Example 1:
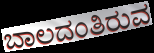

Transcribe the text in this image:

ಬಾಲದಂತಿರುವ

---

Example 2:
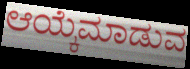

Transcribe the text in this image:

ಆಯ್ಕೆಮಾಡುವ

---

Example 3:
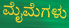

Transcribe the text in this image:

ಮೈಮೆಗಳು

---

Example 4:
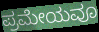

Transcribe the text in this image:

ಪ್ರಮೇಯವೂ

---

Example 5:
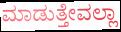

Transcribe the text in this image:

ಮಾಡುತ್ತೇವಲ್ಲಾ